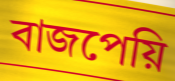
বাজপেয়ি